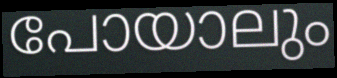
പോയാലും